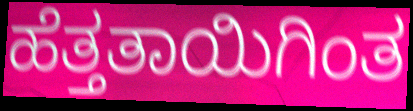
ಹೆತ್ತತಾಯಿಗಿಂತ